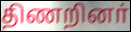
திணறினர்